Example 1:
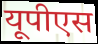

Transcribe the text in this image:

यूपीएस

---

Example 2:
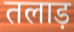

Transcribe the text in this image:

तलाड़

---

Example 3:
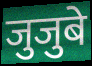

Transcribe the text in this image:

जुजुबे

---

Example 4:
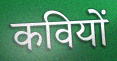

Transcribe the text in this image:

कवियों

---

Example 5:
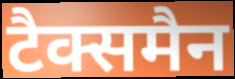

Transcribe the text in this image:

टैक्समैन